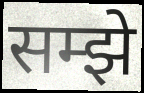
सम्झे